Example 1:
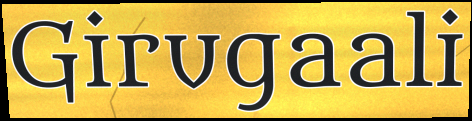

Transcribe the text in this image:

Girugaali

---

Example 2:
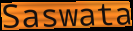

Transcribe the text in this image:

Saswata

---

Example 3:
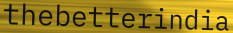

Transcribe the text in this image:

thebetterindia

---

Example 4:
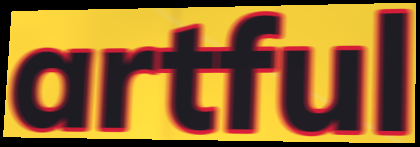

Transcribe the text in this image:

artful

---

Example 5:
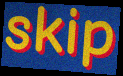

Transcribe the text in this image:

skip